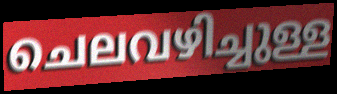
ചെലവഴിച്ചുള്ള